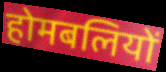
होमबलियों